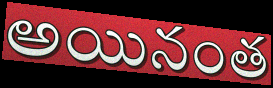
అయినంత